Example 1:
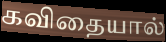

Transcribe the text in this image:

கவிதையால்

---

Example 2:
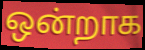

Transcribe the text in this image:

ஒன்றாக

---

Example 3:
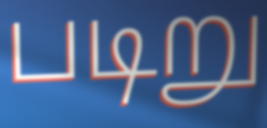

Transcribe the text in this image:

படிறு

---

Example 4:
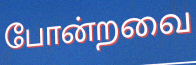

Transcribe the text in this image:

போன்றவை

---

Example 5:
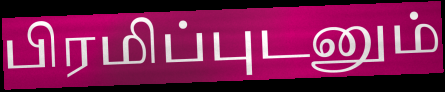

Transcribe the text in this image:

பிரமிப்புடனும்